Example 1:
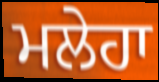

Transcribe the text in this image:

ਮਲੇਹਾ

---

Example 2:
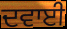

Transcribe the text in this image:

ਦਵਾਈ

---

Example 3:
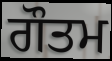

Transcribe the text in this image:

ਗੌਤਮ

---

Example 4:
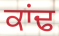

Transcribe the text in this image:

ਕਾਂਢ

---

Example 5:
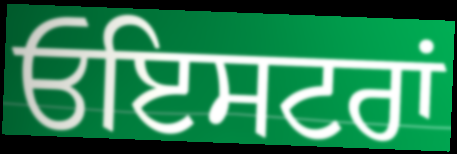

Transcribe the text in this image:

ਓਇਸਟਰਾਂ